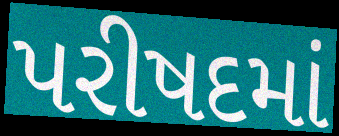
પરીષદમાં